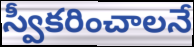
స్వీకరించాలనే